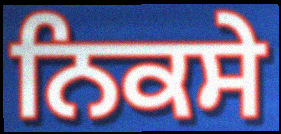
ਨਿਕਸੇ